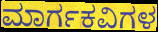
ಮಾರ್ಗಕವಿಗಳ